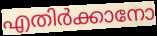
എതിർക്കാനോ